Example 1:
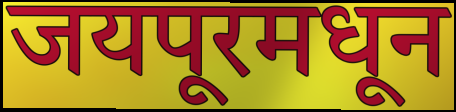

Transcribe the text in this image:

जयपूरमधून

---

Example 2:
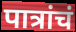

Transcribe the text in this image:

पात्रांचं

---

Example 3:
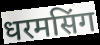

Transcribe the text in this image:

धरमसिंग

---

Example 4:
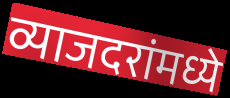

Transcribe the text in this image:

व्याजदरांमध्ये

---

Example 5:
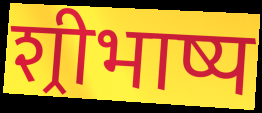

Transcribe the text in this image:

श्रीभाष्य